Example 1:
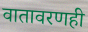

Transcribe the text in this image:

वातावरणही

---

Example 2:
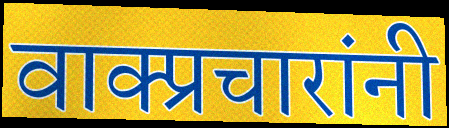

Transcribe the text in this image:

वाक्प्रचारांनी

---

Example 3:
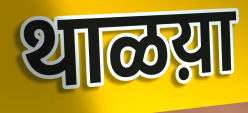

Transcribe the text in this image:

थाळय़ा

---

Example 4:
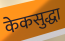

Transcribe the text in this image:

केकसुद्धा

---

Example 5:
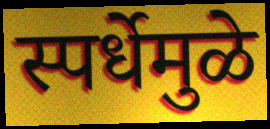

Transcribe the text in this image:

स्पर्धेमुळे